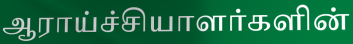
ஆராய்ச்சியாளர்களின்